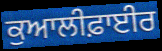
ਕੁਆਲੀਫ਼ਾਈਰ